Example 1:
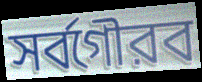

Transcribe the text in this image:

সর্বগৌরব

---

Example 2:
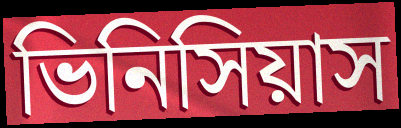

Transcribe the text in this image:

ভিনিসিয়াস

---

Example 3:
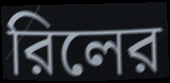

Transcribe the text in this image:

রিলের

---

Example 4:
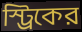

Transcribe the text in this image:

স্ট্রিকের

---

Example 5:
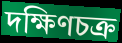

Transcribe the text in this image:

দক্ষিণচক্র